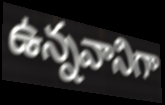
ఉన్నవానిగా